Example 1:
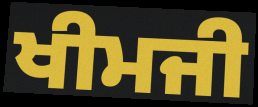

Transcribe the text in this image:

ਖੀਮਜੀ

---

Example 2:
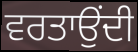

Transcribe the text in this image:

ਵਰਤਾਉਂਦੀ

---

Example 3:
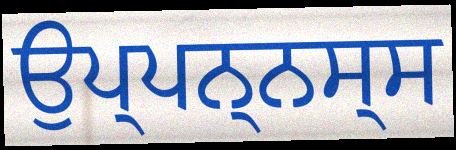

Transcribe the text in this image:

ਉਪ੍ਪਨ੍ਨਸ੍ਸ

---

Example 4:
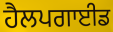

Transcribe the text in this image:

ਹੈਲਪਗਾਈਡ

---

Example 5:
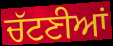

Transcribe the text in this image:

ਚੱਟਣੀਆਂ